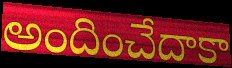
అందించేదాకా